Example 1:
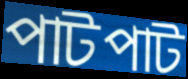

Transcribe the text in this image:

পাটপাট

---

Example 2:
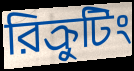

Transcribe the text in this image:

রিক্রুটিং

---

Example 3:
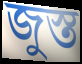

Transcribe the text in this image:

জুস্ত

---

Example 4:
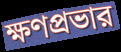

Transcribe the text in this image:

ক্ষণপ্রভার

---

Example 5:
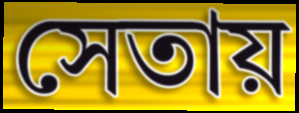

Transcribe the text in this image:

সেতায়